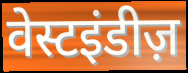
वेस्टइंडीज़